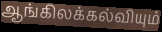
ஆங்கிலக்கல்வியும்